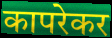
कापरेकर